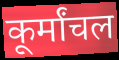
कूर्मांचल